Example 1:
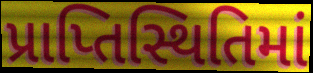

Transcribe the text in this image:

પ્રાપ્તિસ્થિતિમાં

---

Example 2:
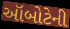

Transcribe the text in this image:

ઑબોટેની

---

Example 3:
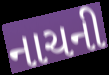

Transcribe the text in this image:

નાચની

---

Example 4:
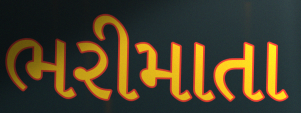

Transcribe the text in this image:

ભરીમાતા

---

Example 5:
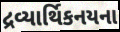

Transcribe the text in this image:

દ્રવ્યાર્થિકનયના